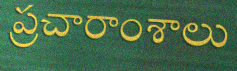
ప్రచారాంశాలు